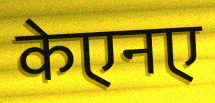
केएनए